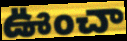
ఊంచా